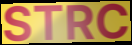
STRC